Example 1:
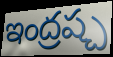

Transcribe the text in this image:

ఇంద్రష్చ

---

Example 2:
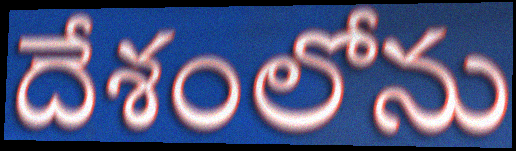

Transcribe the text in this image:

దేశంలోను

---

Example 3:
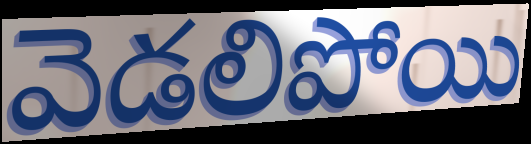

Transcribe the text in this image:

వెడలిపోయి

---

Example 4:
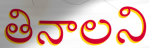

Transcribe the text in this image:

తినాలని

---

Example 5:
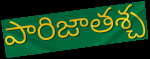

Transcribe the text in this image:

పారిజాతశ్చ